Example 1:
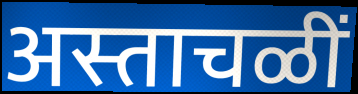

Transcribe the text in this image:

अस्ताचळीं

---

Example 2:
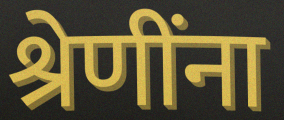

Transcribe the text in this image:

श्रेणींना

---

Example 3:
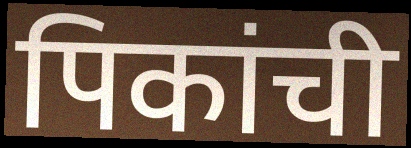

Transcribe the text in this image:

पिकांची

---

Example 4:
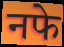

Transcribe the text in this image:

नफे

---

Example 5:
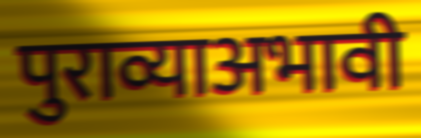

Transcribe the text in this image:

पुराव्याअभावी